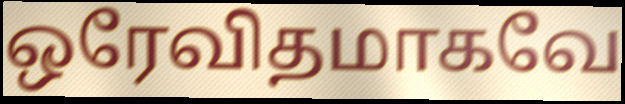
ஒரேவிதமாகவே